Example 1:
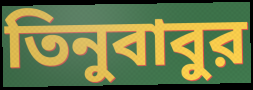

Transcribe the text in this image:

তিনুবাবুর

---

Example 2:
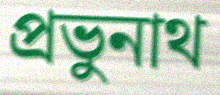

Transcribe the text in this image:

প্রভুনাথ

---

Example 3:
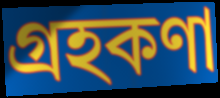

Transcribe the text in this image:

গ্রহকণা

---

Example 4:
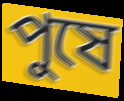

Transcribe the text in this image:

পুষে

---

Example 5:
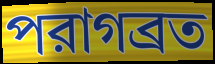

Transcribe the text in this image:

পরাগব্রত